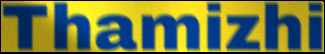
Thamizhi